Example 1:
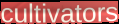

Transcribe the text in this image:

cultivators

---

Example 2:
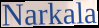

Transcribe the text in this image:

Narkala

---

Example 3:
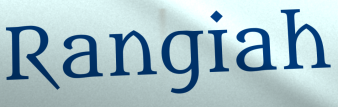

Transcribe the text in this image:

Rangiah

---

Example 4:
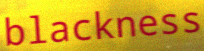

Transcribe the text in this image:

blackness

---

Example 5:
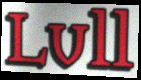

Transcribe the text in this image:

Lull